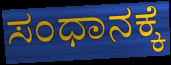
ಸಂಧಾನಕ್ಕೆ